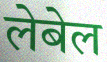
लेबेल